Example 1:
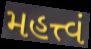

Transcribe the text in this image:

મહત્ત્વં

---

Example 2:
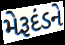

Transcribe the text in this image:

મેરૂદંડને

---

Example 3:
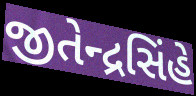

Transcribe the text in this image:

જીતેન્દ્રસિંહે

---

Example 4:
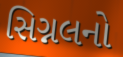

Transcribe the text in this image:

સિગ્નલનો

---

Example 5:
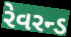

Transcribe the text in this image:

રેવરન્ડ